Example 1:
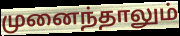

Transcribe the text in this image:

முனைந்தாலும்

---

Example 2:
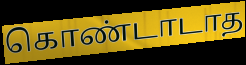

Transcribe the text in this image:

கொண்டாடாத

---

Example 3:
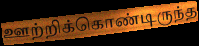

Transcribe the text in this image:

ஊற்றிக்கொண்டிருந்த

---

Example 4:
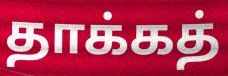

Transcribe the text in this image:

தாக்கத்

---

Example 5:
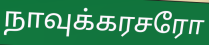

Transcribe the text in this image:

நாவுக்கரசரோ